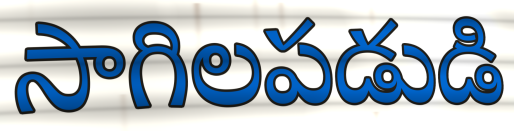
సాగిలపడుడి